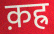
क़ह्र